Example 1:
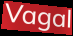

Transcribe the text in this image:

Vagal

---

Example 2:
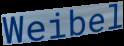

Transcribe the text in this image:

Weibel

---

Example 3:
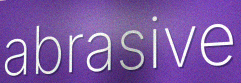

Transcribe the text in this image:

abrasive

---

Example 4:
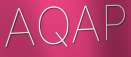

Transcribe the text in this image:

AQAP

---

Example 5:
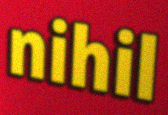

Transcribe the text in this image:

nihil